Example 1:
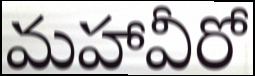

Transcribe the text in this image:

మహావీరో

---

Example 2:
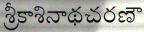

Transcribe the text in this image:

శ్రీకాశినాథచరణౌ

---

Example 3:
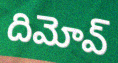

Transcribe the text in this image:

దిమోవ్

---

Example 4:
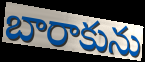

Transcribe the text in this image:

బారాకును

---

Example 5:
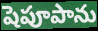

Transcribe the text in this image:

షెపూపాను